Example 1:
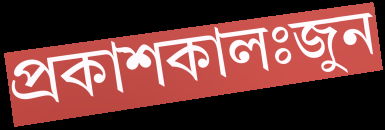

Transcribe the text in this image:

প্রকাশকালঃজুন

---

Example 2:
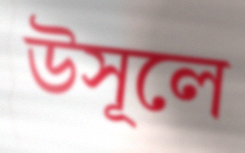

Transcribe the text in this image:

উসূলে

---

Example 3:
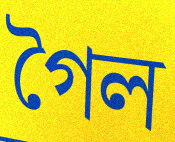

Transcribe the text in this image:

গৈল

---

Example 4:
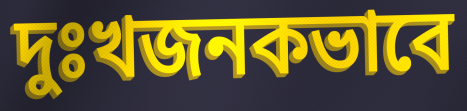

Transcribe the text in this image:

দুঃখজনকভাবে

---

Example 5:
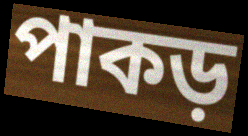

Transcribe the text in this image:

পাকড়